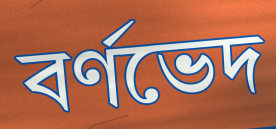
বর্ণভেদ